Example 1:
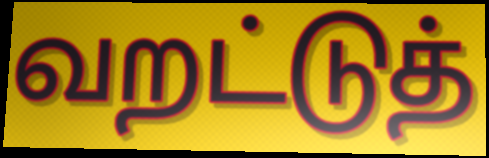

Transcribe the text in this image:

வறட்டுத்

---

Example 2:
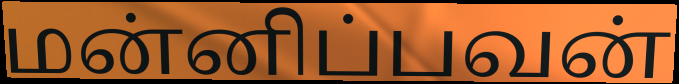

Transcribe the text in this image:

மன்னிப்பவன்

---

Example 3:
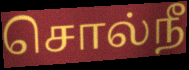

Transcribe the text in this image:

சொல்நீ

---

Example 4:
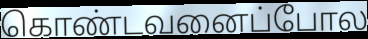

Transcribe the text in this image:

கொண்டவனைப்போல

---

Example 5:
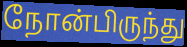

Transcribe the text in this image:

நோன்பிருந்து